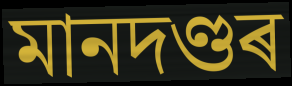
মানদণ্ডৰ